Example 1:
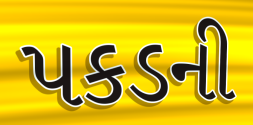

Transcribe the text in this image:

પકડની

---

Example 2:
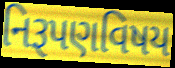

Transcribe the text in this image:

નિરૂપણવિષય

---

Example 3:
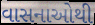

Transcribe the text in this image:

વાસનાઓથી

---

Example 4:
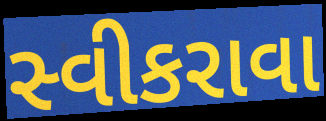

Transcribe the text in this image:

સ્વીકરાવા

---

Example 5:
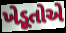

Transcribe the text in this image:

ખેડૂતોએ